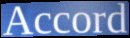
Accord